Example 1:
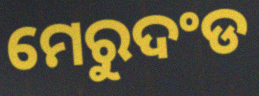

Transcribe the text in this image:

ମେରୁଦଂଡ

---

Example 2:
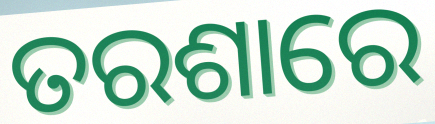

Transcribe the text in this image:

ତରଶାରେ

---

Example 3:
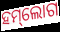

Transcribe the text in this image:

ହମ୍‌ଲୋଗ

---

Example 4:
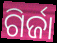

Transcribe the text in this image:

ଗିର୍ଜା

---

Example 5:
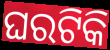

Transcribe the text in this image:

ଘରଟିକି